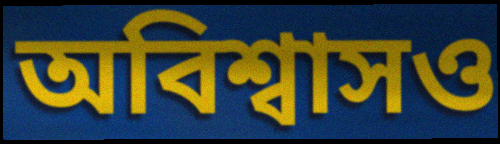
অবিশ্বাসও